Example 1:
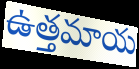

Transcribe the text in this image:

ఉత్తమాయ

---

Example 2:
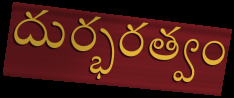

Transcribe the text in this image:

దుర్భరత్వం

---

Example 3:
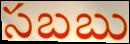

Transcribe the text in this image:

సబబు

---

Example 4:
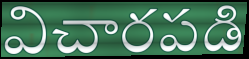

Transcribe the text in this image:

విచారపడి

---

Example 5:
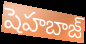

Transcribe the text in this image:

షెహబాజ్